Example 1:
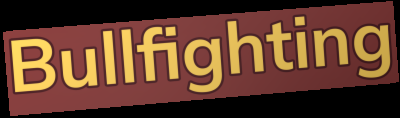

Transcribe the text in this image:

Bullfighting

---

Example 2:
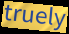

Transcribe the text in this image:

truely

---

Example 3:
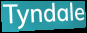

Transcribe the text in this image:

Tyndale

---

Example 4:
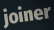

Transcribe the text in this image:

joiner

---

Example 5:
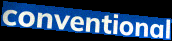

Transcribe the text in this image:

conventional